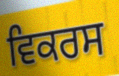
ਵਿਕਰਸ